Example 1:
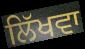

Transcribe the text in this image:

ਲਿੱਖਵਾ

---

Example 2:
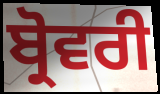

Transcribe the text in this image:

ਬ੍ਰੋਵਰੀ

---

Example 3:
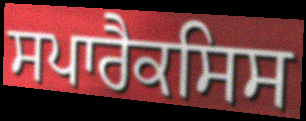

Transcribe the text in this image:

ਸਪਾਰੈਕਸਿਸ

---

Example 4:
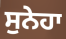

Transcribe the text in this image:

ਸੁਨੇਹਾ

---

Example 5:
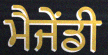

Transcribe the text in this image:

ਮੈਜੇਂਡੀ